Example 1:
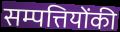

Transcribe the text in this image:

सम्पत्तियोंकी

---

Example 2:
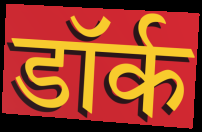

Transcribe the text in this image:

डॉर्क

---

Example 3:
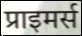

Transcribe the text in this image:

प्राइमर्स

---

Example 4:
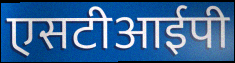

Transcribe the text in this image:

एसटीआईपी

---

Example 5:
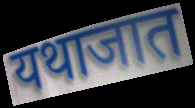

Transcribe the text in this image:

यथाजात